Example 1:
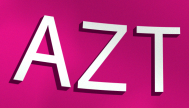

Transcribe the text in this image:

AZT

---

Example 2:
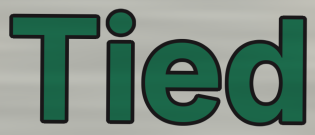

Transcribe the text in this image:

Tied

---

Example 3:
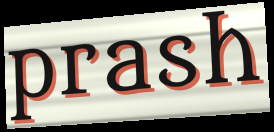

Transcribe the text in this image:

prash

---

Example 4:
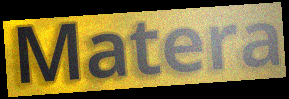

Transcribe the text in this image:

Matera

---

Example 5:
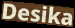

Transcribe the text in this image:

Desika